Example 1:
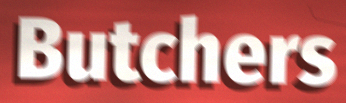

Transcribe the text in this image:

Butchers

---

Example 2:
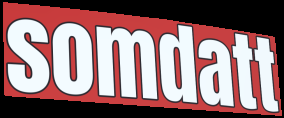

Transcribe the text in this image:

somdatt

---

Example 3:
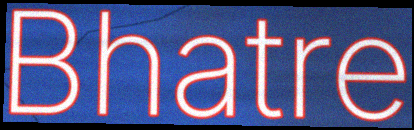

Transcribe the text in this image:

Bhatre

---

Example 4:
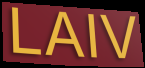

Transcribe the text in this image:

LAIV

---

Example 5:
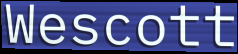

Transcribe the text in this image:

Wescott